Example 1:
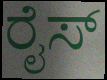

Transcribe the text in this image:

ರೈಸ್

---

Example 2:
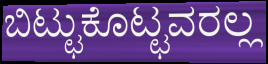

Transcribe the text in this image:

ಬಿಟ್ಟುಕೊಟ್ಟವರಲ್ಲ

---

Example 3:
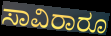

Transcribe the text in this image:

ಸಾವಿರಾರೂ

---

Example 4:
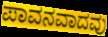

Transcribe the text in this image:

ಪಾವನವಾದವು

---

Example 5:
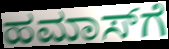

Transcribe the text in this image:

ಹಮಾಸ್‌ಗೆ